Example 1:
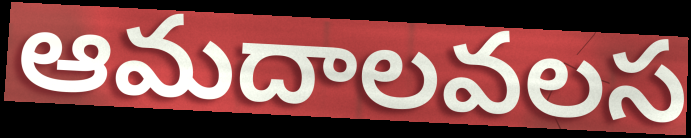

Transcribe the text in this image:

ఆమదాలవలస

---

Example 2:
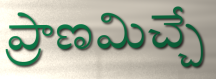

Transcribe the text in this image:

ప్రాణమిచ్చే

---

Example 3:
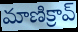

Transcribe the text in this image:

మాణిక్రావ్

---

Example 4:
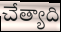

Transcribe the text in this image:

చేత్యాది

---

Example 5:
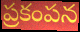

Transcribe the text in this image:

ప్రకంపన